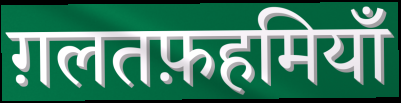
ग़लतफ़हमियाँ